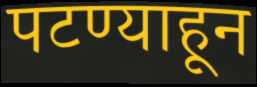
पटण्याहून